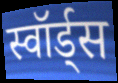
स्वॉर्ड्स